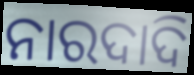
ନାରଦାଦି